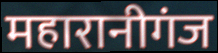
महारानीगंज